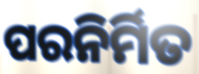
ପରନିର୍ମିତ